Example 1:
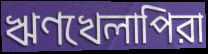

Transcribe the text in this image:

ঋণখেলাপিরা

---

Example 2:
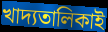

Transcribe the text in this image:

খাদ্যতালিকাই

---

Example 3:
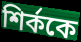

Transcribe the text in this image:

শির্ককে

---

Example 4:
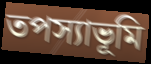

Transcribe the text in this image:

তপস্যাভূমি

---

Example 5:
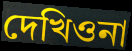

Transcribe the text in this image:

দেখিওনা